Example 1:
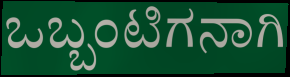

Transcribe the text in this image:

ಒಬ್ಬಂಟಿಗನಾಗಿ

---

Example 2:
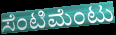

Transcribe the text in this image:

ಸೆಂಟಿಮೆಂಟು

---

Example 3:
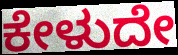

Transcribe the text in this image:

ಕೇಳುದೇ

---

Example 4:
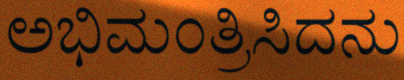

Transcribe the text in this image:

ಅಭಿಮಂತ್ರಿಸಿದನು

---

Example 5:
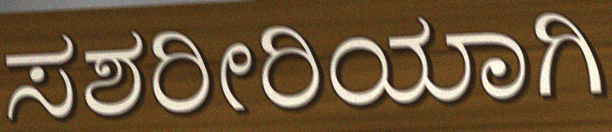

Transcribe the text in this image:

ಸಶರೀರಿಯಾಗಿ